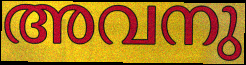
അവനു